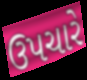
ઉપચારે